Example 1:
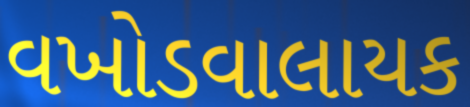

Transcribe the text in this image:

વખોડવાલાયક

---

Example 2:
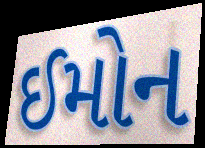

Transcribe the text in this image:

ઈમોન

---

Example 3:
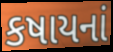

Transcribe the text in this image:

કષાયનાં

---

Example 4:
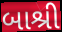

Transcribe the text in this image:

બાશ્રી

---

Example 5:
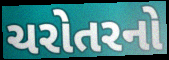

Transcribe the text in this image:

ચરોતરનો